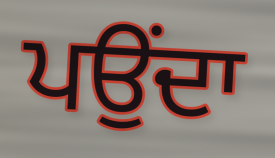
ਪਉਂਦਾ